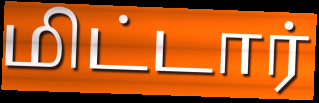
மிட்டார்